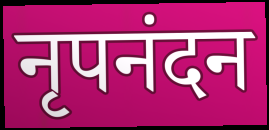
नृपनंदन